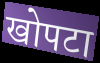
खोपटा